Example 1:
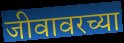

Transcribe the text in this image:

जीवावरच्या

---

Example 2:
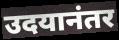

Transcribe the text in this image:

उदयानंतर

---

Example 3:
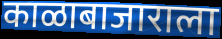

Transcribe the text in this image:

काळाबाजाराला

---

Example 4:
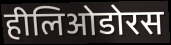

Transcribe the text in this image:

हीलिओडोरस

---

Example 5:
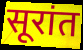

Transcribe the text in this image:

सूरांत